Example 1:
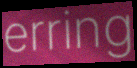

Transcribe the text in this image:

erring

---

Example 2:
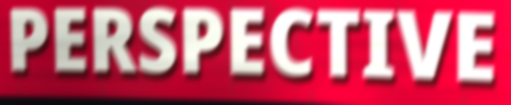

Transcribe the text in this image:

PERSPECTIVE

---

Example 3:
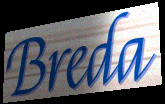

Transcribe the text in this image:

Breda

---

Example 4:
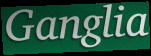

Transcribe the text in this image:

Ganglia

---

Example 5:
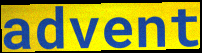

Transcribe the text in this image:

advent